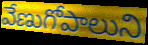
వేణుగోపాలుని